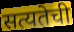
सत्यतेची